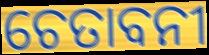
ଚେତାବନୀ